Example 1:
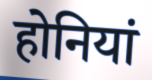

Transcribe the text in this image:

होनियां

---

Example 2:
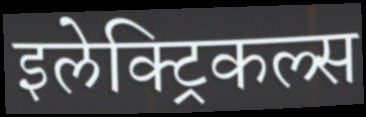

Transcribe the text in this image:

इलेक्ट्रिकल्स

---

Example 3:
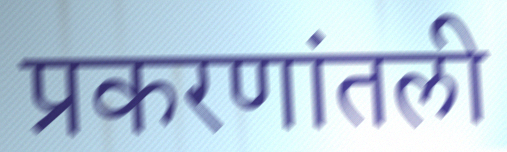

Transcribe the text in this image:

प्रकरणांतली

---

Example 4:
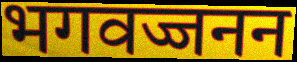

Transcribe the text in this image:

भगवज्जनन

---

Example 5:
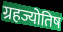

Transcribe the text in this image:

ग्रहज्योतिष